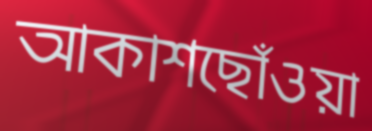
আকাশছোঁওয়া